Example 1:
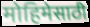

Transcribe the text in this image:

मोहिमेसाठी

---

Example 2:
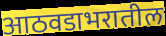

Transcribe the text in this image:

आठवडाभरातील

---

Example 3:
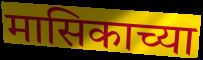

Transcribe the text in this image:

मासिकाच्या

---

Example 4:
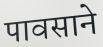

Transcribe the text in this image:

पावसाने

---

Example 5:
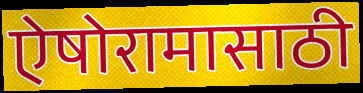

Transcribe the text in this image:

ऐषोरामासाठी